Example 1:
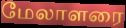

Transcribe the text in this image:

மேலாளரை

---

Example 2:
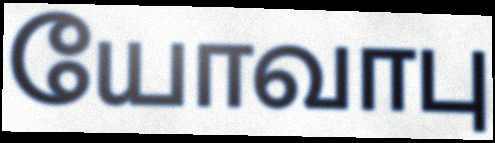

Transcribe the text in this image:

யோவாபு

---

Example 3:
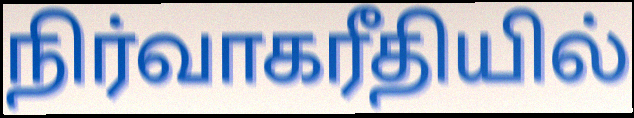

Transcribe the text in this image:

நிர்வாகரீதியில்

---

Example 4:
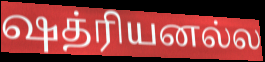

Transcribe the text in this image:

ஷத்ரியனல்ல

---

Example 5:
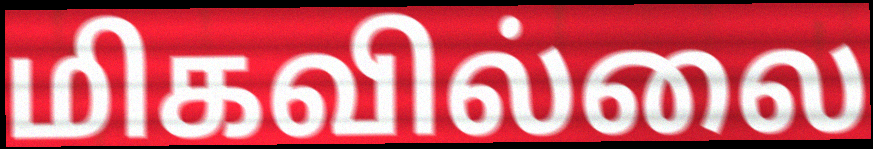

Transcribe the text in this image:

மிகவில்லை